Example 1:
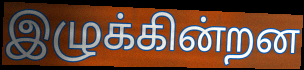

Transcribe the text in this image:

இழுக்கின்றன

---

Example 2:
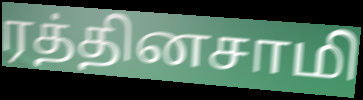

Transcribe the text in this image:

ரத்தினசாமி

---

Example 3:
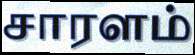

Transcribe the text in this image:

சாரளம்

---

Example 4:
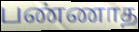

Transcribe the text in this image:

பண்ணாத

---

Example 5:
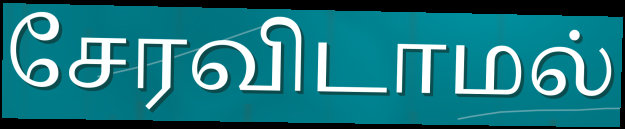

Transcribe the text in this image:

சேரவிடாமல்